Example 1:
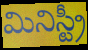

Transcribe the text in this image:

మినిస్ట్రీ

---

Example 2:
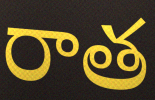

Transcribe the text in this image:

రాత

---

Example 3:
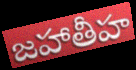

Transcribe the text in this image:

జహాతీహ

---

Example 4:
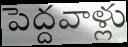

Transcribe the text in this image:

పెద్దవాళ్లు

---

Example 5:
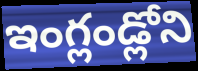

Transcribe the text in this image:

ఇంగ్లండ్లోని